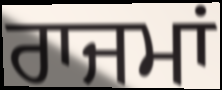
ਰਾਜਮਾਂ